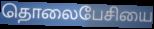
தொலைபேசியை